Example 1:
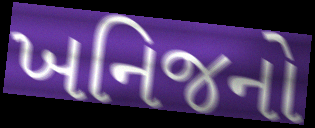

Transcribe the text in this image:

ખનિજનો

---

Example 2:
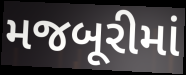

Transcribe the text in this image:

મજબૂરીમાં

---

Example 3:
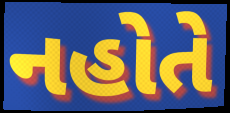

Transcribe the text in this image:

નહોતે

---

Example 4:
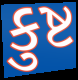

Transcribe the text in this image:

કુષ્ટ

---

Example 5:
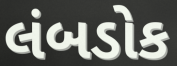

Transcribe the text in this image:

લંબડોક